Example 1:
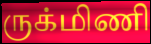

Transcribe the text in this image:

ருக்மிணி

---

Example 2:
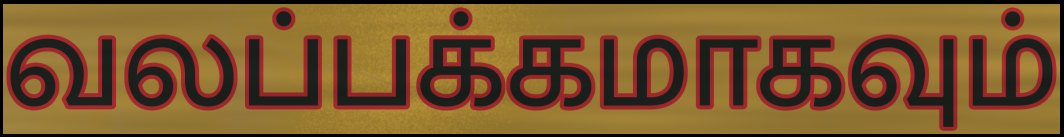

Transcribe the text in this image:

வலப்பக்கமாகவும்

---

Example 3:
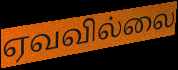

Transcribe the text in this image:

ஏவவில்லை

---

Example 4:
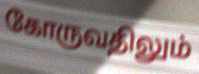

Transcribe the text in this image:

கோருவதிலும்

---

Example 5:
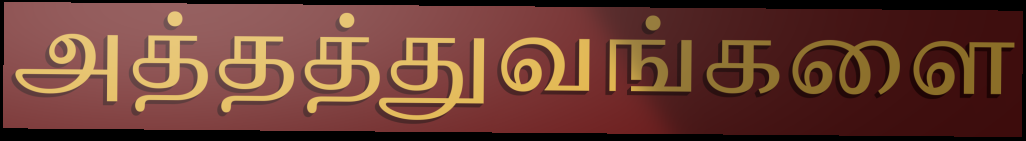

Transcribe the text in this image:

அத்தத்துவங்களை